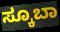
ಸ್ಕೂಬಾ